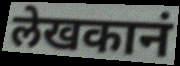
लेखकानं